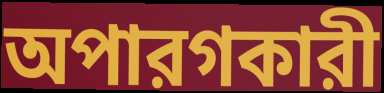
অপারগকারী